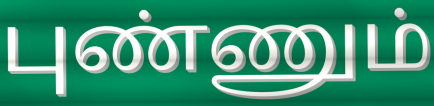
புண்ணும்